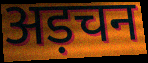
अड़चन